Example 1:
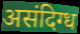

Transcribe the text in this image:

असंदिग्ध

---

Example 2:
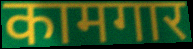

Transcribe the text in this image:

कामगार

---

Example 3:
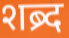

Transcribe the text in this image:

शब्र्द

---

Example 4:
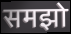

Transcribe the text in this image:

समझो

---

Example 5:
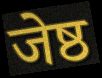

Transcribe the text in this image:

जेष्ठ